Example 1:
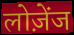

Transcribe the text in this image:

लोज़ेंज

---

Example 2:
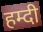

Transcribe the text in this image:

हम्दी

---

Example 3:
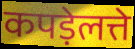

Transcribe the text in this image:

कपड़ेलत्ते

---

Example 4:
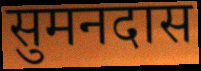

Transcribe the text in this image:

सुमनदास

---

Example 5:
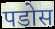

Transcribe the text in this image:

पडोस